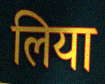
लिया